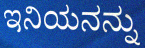
ಇನಿಯನನ್ನು